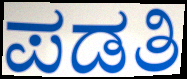
ಪಡತಿ